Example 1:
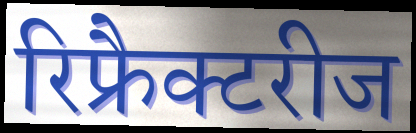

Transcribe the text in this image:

रिफ्रैक्टरीज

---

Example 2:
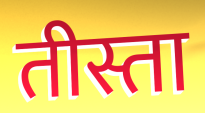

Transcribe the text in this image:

तीस्ता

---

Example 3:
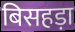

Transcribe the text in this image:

बिसहड़ा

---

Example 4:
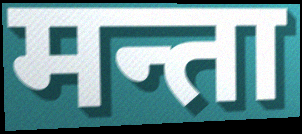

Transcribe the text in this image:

मन्ता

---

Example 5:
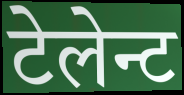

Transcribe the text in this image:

टेलेन्ट